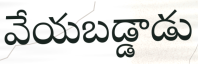
వేయబడ్డాడు